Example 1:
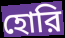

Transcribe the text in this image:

হোরি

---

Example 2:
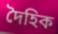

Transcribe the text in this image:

দৈহিক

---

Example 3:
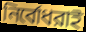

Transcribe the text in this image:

নির্বোধরাই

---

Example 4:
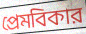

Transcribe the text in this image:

প্রেমবিকার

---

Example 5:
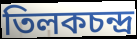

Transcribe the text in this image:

তিলকচন্দ্র